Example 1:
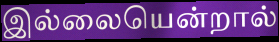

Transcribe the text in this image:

இல்லையென்றால்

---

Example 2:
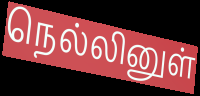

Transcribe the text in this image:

நெல்லினுள்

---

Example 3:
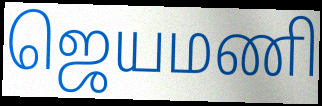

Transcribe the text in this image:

ஜெயமணி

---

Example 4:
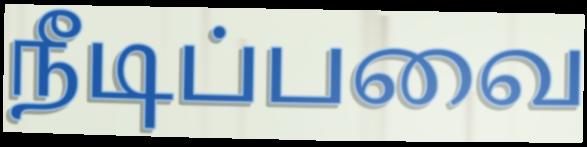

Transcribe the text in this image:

நீடிப்பவை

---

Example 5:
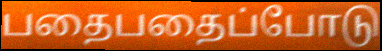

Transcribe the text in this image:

பதைபதைப்போடு